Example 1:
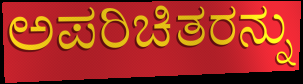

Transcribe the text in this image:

ಅಪರಿಚಿತರನ್ನು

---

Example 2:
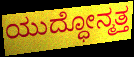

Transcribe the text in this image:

ಯುದ್ಧೋನ್ಮತ್ತ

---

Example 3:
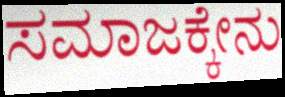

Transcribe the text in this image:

ಸಮಾಜಕ್ಕೇನು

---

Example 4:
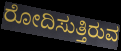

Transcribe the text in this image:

ರೋದಿಸುತ್ತಿರುವ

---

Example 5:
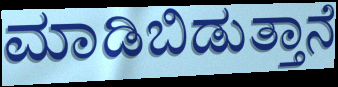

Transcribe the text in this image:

ಮಾಡಿಬಿಡುತ್ತಾನೆ